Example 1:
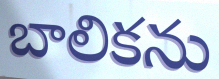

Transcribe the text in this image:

బాలికను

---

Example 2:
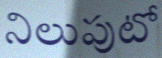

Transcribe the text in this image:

నిలుపుటో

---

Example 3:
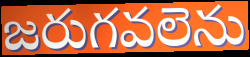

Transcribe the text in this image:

జరుగవలెను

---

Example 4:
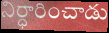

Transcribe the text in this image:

నిర్ధారించాడు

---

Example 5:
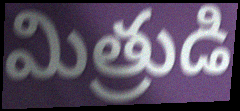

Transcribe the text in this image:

మిత్రుడి